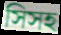
সিসহ